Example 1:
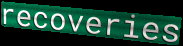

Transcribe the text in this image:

recoveries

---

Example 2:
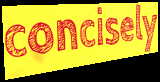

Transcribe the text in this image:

concisely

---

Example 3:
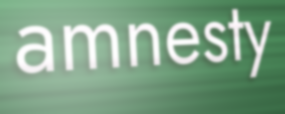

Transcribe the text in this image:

amnesty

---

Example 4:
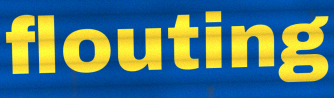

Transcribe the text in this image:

flouting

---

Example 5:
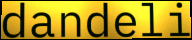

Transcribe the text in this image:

dandeli